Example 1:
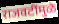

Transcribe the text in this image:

राजवटींमुळे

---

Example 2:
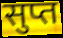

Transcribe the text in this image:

सुप्त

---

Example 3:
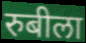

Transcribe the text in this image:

रुबीला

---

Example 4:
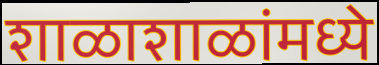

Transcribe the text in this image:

शाळाशाळांमध्ये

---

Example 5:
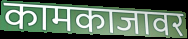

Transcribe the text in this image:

कामकाजावर